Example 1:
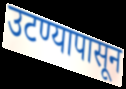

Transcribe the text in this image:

उटण्यापासून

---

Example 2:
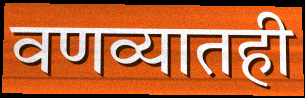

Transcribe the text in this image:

वणव्यातही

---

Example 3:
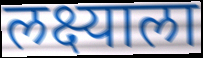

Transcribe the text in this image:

लक्ष्याला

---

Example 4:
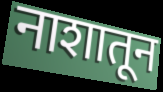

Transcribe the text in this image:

नाशातून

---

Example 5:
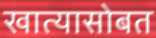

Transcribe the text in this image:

खात्यासोबत